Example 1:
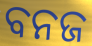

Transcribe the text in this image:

ବନଜ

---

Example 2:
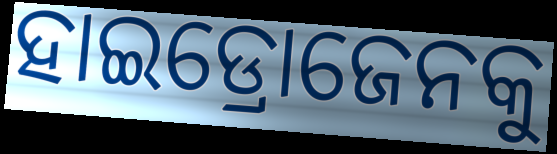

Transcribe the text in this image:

ହାଇଡ୍ରୋଜେନକୁ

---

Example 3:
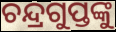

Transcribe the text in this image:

ଚନ୍ଦ୍ରଗୁପ୍ତଙ୍କୁ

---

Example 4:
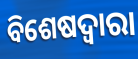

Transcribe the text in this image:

ବିଶେଷଦ୍ଵାରା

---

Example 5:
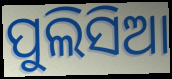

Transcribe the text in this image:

ପୁଲିସିଆ